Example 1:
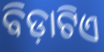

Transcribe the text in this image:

ବିଡ଼ାଟିଏ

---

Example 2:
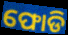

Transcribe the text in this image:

ଫୋଡି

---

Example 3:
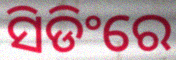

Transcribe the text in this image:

ସିଡିଂରେ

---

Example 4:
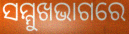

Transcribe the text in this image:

ସମ୍ମୁଖଭାଗରେ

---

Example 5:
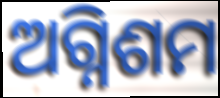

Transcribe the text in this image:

ଅଗ୍ନିଶମ